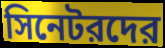
সিনেটরদের